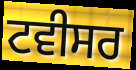
ਟਵੀਸਰ